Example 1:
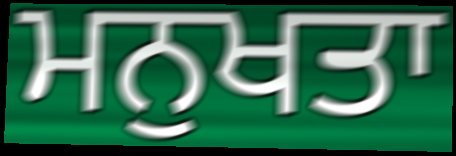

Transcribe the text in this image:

ਮਨੁਖਤਾ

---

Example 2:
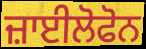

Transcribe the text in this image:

ਜ਼ਾਈਲੋਫੋਨ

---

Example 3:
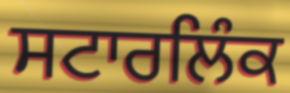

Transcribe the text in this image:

ਸਟਾਰਲਿੰਕ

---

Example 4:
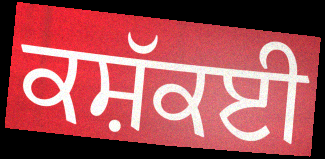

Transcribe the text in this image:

ਕਸ਼ੱਕਈ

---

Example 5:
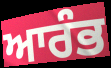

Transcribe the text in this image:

ਆਰੰਭ